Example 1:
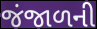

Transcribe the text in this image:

જંજાળની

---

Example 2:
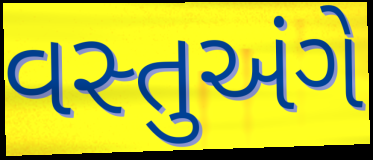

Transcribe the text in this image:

વસ્તુઅંગે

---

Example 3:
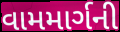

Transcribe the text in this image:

વામમાર્ગની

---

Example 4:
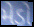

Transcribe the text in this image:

મેડો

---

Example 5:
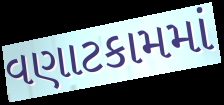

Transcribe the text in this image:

વણાટકામમાં